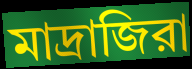
মাদ্রাজিরা